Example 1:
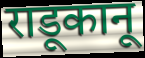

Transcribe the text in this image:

राडूकानू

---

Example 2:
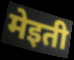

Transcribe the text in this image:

मेइती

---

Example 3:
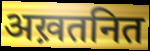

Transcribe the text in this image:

अख़तनित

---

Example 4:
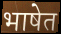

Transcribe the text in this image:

भाषेत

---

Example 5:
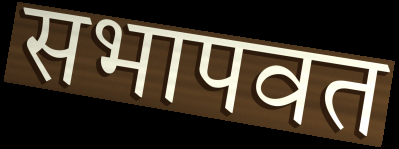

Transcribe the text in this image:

सभापवत